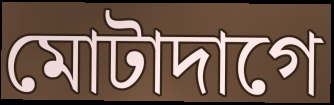
মোটাদাগে